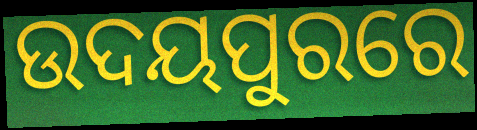
ଉଦୟପୁରରେ